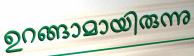
ഉറങ്ങാമായിരുന്നു